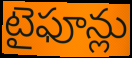
టైఫూన్లు